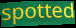
spotted